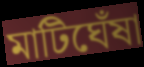
মাটিঘেঁষা